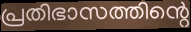
പ്രതിഭാസത്തിന്റെ